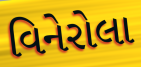
વિનેરોલા